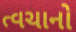
ત્વચાનો